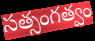
సత్సంగత్వం